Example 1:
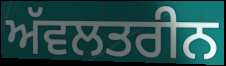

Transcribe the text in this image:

ਅੱਵਲਤਰੀਨ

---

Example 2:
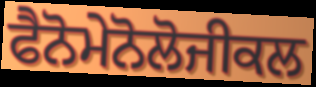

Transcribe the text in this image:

ਫੈਨੋਮੇਨੋਲੋਜੀਕਲ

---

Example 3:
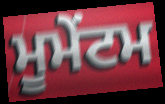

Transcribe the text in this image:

ਮੂਮੇਂਟਮ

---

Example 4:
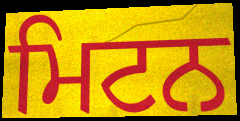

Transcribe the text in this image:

ਮਿਟਨ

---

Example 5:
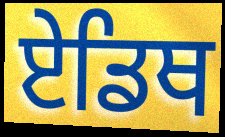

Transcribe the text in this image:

ਏਡਿਥ